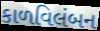
કાળવિલંબન